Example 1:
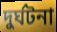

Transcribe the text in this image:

দুর্ঘটনা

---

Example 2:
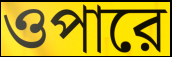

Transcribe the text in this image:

ওপারে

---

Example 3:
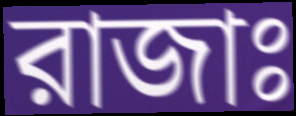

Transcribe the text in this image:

রাজাঃ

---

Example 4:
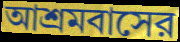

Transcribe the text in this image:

আশ্রমবাসের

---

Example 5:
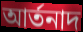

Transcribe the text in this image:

আর্তনাদ